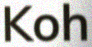
Koh